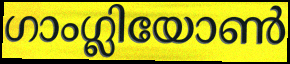
ഗാംഗ്ലിയോൺ